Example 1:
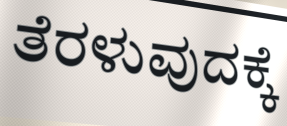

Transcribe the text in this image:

ತೆರಳುವುದಕ್ಕೆ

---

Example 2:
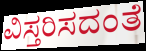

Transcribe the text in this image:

ವಿಸ್ತರಿಸದಂತೆ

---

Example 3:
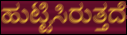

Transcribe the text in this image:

ಹುಟ್ಟಿಸಿರುತ್ತದೆ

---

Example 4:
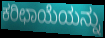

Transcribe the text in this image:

ಕರಿಛಾಯೆಯನ್ನು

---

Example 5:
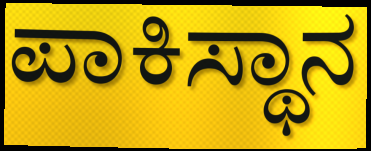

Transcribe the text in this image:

ಪಾಕಿಸ್ಥಾನ